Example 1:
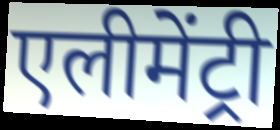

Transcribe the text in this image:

एलीमेंट्री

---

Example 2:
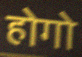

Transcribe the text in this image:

होगो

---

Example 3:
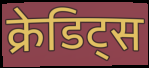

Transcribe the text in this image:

क्रेडिट्स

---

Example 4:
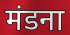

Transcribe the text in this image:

मंडना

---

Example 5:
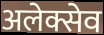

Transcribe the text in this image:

अलेक्सेव